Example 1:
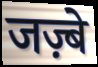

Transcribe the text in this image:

जज़्बे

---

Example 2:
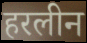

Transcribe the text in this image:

हरलीन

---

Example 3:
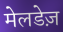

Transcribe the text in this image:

मेलडेज़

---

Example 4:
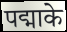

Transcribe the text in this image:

पद्माके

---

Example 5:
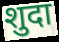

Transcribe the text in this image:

शुदा